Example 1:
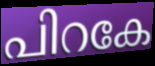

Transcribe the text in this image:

പിറകേ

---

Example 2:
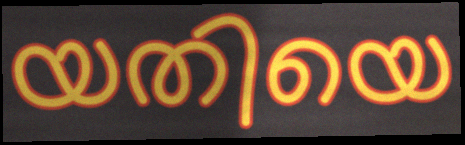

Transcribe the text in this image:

യതിയെ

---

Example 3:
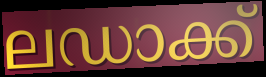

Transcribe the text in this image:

ലഡാക്ക്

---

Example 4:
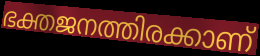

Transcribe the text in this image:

ഭക്തജനത്തിരക്കാണ്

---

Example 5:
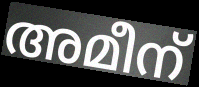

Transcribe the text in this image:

അമീന്